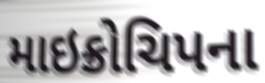
માઇક્રોચિપના